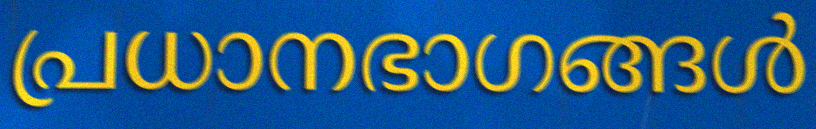
പ്രധാനഭാഗങ്ങൾ